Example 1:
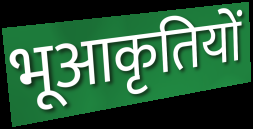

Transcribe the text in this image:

भूआकृतियों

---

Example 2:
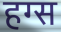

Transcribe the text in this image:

हग्स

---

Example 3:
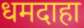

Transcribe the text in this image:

धमदाहा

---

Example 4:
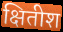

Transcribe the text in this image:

क्षितीश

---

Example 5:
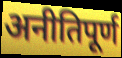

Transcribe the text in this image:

अनीतिपूर्ण